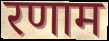
रणाम